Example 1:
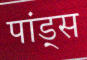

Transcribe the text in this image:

पांड्स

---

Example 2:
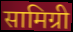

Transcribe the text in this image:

सामिग्री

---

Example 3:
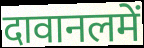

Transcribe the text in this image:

दावानलमें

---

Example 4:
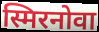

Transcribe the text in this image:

स्मिरनोवा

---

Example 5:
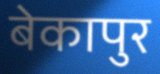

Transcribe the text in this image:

बेकापुर